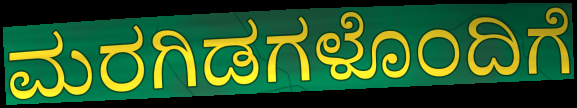
ಮರಗಿಡಗಳೊಂದಿಗೆ